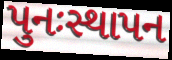
પુનઃસ્થાપન